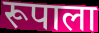
रूपाला